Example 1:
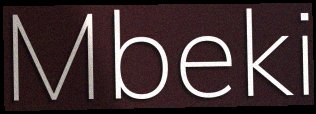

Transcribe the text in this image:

Mbeki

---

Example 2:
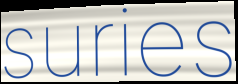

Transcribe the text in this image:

suries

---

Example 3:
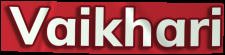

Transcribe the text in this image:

Vaikhari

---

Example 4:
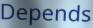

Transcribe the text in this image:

Depends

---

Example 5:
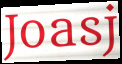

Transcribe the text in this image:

Joasj